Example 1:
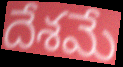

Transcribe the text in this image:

దేశమే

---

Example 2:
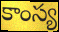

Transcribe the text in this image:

కాంస్య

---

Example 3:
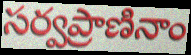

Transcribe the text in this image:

సర్వప్రాణినాం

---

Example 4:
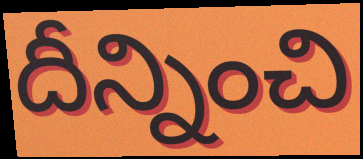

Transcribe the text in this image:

దీన్నించి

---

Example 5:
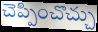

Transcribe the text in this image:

చెప్పించొచ్చు